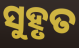
ସୁହୃତ